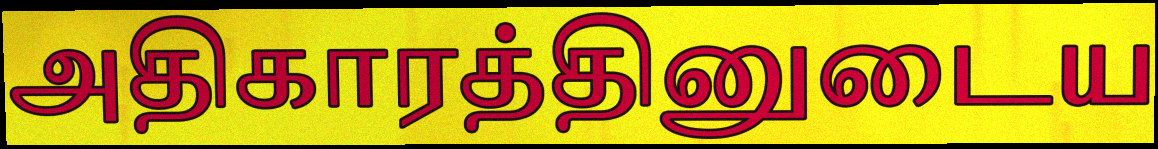
அதிகாரத்தினுடைய